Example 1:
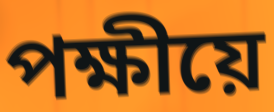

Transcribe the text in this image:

পক্ষীয়ে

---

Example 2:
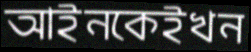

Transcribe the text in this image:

আইনকেইখন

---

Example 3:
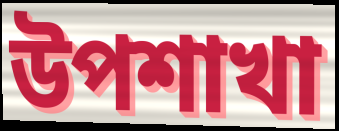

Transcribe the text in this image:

উপশাখা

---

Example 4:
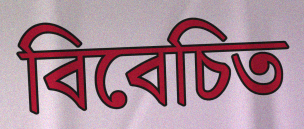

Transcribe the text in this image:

বিবেচিত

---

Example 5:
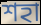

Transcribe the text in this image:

শহা